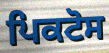
ਪਿਕਟੋਸ